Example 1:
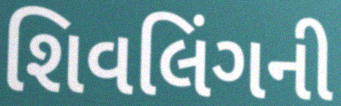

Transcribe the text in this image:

શિવલિંગની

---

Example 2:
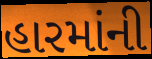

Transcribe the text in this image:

હારમાંની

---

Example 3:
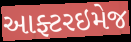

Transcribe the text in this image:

આફ્ટરઇમેજ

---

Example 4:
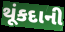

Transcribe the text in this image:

થૂંકદાની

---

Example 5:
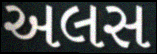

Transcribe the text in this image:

અલસ